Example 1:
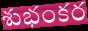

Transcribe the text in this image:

శుభంకర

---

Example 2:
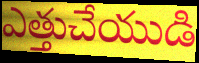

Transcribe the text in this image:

ఎత్తుచేయుడి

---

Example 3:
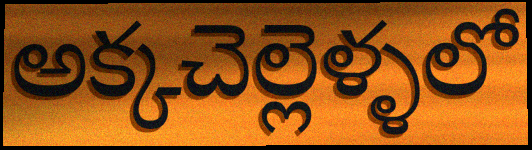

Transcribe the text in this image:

అక్కచెల్లెళ్ళలో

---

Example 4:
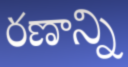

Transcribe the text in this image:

రణాన్ని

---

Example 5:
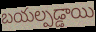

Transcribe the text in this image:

బయల్పడ్డాయి